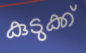
കുടുക്ക്